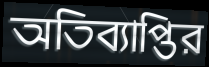
অতিব্যাপ্তির